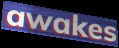
awakes